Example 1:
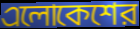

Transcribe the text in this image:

এলোকেশের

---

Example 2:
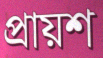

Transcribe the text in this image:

প্রায়শ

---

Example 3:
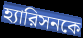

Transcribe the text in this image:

হ্যারিসনকে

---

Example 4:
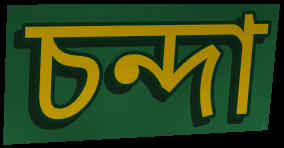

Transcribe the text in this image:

চন্দা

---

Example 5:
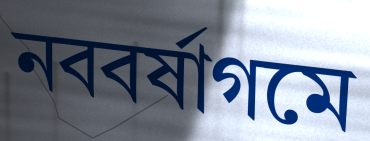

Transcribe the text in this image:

নববর্ষাগমে